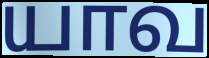
யாவ